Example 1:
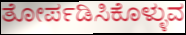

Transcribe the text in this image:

ತೋರ್ಪಡಿಸಿಕೊಳ್ಳುವ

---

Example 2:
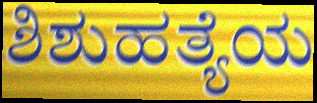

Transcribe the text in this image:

ಶಿಶುಹತ್ಯೆಯ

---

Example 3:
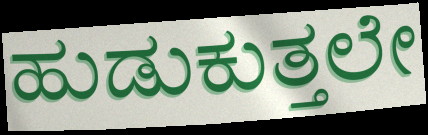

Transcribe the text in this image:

ಹುಡುಕುತ್ತಲೇ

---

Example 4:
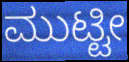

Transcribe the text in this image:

ಮುಟ್ಟೀ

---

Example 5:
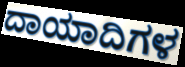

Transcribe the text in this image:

ದಾಯಾದಿಗಳ